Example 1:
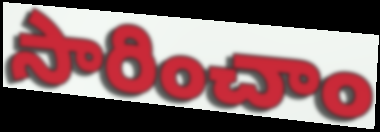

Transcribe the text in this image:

సారించాం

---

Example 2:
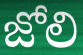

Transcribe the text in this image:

జోలి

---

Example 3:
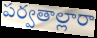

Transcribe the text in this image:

పర్వతాల్లారా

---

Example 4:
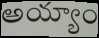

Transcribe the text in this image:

అయ్యాం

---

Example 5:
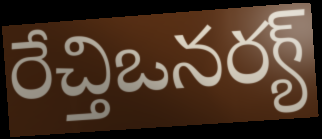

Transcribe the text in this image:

రేచ్తిఒనర్య్